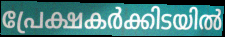
പ്രേക്ഷകർക്കിടയിൽ